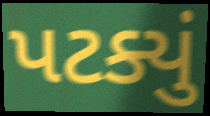
પટક્યું